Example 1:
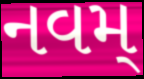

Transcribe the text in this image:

નવમ્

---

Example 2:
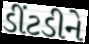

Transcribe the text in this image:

ડીંટડીને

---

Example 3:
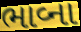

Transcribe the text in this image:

ભાવ્ના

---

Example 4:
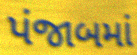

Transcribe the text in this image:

પંજાબમાં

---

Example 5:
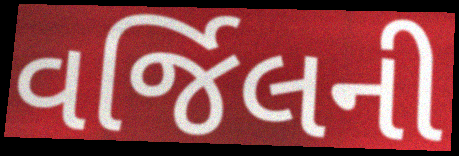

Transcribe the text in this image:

વર્જિલની